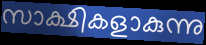
സാക്ഷികളാകുന്നു